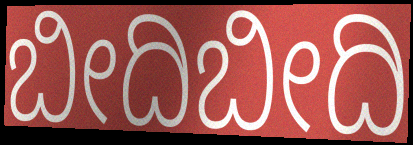
ಬೀದಿಬೀದಿ